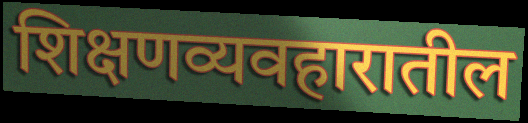
शिक्षणव्यवहारातील